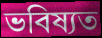
ভবিষ্যত